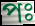
পঃ